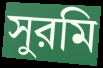
সুরমি